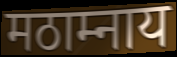
मठाम्नाय